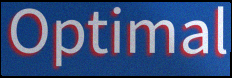
Optimal